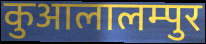
कुआलालम्पुर